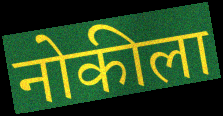
नोकीला